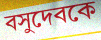
বসুদেবকে